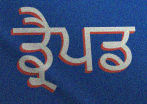
ਡ੍ਰੈਪਡ